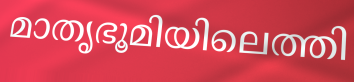
മാതൃഭൂമിയിലെത്തി